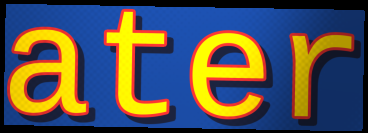
ater